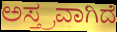
ಅಸ್ತ್ರವಾಗಿದೆ